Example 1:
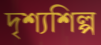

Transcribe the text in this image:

দৃশ্যশিল্প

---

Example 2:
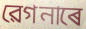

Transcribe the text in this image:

ৱেগনাৰে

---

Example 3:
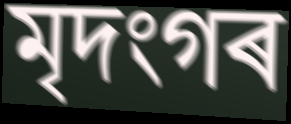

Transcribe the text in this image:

মৃদংগৰ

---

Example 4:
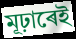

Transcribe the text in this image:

মূঢ়াৰেই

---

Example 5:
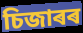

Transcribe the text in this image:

চিজাৰৰ